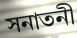
সনাতনী